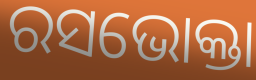
ରସଭୋକ୍ତା